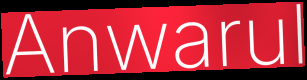
Anwarul